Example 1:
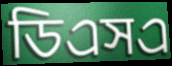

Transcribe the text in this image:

ডিএসএ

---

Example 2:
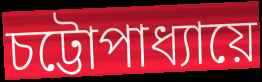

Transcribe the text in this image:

চট্টোপাধ্যায়ে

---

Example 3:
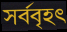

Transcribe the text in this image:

সর্ববৃহৎ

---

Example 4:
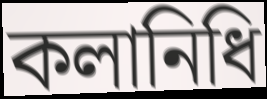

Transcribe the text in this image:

কলানিধি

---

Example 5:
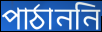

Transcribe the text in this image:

পাঠাননি